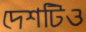
দেশটিও